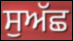
ਸੁਅੱਛ